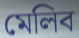
মেলিব